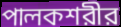
পালকশরীর